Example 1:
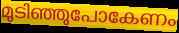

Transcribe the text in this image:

മുടിഞ്ഞുപോകേണം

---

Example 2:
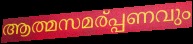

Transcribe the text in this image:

ആത്മസമര്പ്പണവും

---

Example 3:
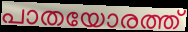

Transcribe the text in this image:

പാതയോരത്ത്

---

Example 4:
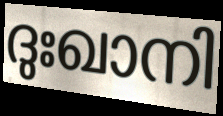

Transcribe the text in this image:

ദുഃഖാനി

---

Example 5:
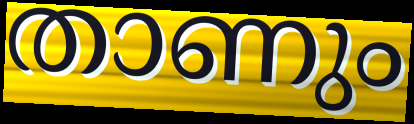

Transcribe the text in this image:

താണും